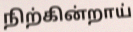
நிற்கின்றாய்